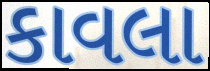
કાવલા